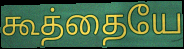
கூத்தையே